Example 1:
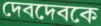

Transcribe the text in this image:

দেবদেবকে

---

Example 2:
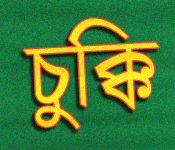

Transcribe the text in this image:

চুক্কি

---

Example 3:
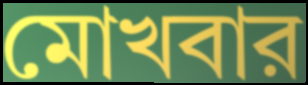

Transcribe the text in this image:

মোখবার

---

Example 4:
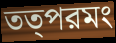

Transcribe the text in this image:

তত্পরমং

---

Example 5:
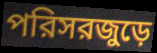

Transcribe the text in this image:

পরিসরজুড়ে